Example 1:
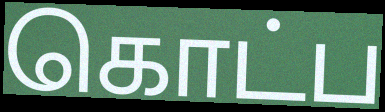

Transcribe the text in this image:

கொட்ப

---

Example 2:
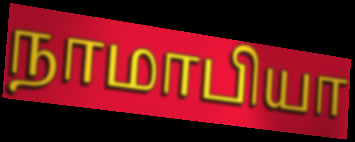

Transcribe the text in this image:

நாமாபியா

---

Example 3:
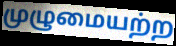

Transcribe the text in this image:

முழுமையற்ற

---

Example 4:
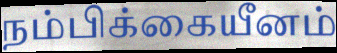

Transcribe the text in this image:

நம்பிக்கையீனம்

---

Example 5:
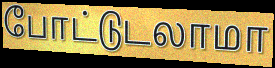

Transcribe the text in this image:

போட்டுடலாமா